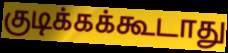
குடிக்கக்கூடாது